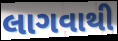
લાગવાથી